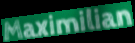
Maximilian